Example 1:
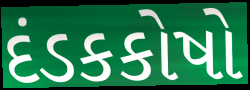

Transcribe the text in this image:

દંડકકોષો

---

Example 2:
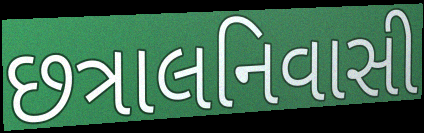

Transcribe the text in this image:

છત્રાલનિવાસી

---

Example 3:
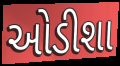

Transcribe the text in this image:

ઓડીશા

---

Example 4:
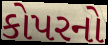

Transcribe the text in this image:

કોપરનો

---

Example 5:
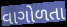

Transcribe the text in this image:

વાગોળતા